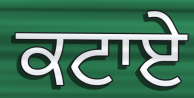
ਕਟਾਏ